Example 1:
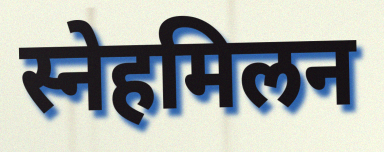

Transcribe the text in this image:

स्नेहमिलन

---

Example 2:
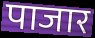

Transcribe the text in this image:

पाजार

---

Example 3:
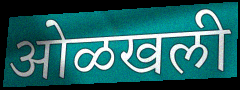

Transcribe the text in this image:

ओळखली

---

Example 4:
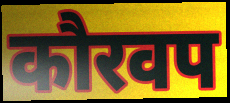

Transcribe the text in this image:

कौरवप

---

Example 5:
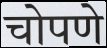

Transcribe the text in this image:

चोपणे